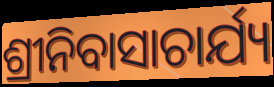
ଶ୍ରୀନିବାସାଚାର୍ଯ୍ୟ